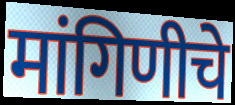
मांगिणीचे